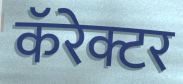
कॅरेक्टर